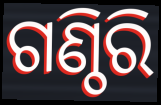
ଗଣ୍ଠିରି